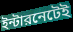
ইন্টারনেটেই